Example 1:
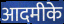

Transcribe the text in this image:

आदमीके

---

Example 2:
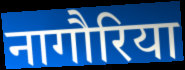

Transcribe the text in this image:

नागौरिया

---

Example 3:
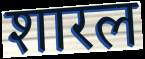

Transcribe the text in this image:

शारल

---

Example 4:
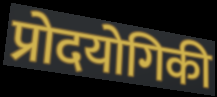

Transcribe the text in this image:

प्रोदयोगिकी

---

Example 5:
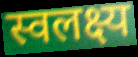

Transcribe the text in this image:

स्वलक्ष्य